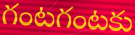
గంటగంటకు